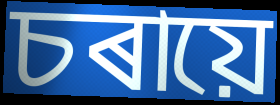
চৰায়ে